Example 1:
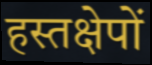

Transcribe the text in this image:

हस्तक्षेपों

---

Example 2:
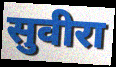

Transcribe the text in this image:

सुवीरा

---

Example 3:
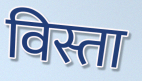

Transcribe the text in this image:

विस्ता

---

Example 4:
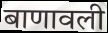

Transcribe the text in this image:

बाणावली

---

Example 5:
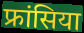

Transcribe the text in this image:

फ्रांसिया